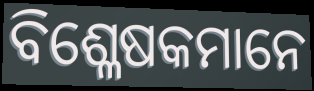
ବିଶ୍ଳେଷକମାନେ